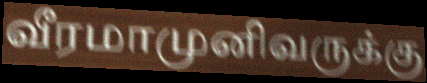
வீரமாமுனிவருக்கு